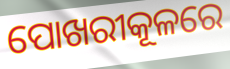
ପୋଖରୀକୂଳରେ